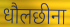
धौलछीना